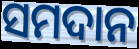
ସମଦାନ